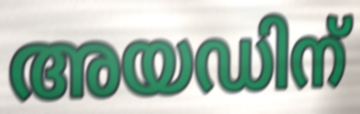
അയഡിന്